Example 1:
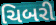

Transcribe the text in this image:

ચિબરી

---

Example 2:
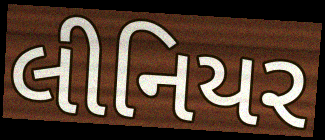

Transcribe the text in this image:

લીનિયર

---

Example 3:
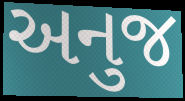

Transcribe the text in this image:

અનુજ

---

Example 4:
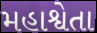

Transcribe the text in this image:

મહાશ્વેતા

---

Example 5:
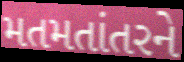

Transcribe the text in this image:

મતમતાંતરને